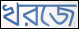
খরজে